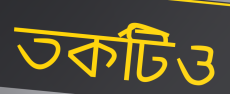
তর্কটিও